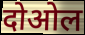
दोओल